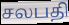
சலபதி